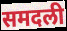
समदली